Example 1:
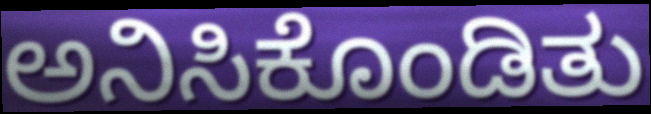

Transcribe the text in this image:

ಅನಿಸಿಕೊಂಡಿತು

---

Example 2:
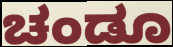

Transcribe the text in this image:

ಚಂಡೂ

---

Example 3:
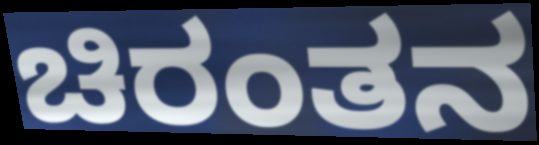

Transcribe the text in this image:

ಚಿರಂತನ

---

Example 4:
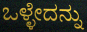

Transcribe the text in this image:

ಒಳ್ಳೇದನ್ನು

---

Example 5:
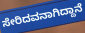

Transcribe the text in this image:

ಸೇರಿದವನಾಗಿದ್ದಾನೆ